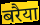
बरैया